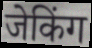
जेकिंग